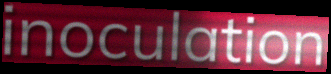
inoculation